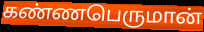
கண்ணபெருமான்